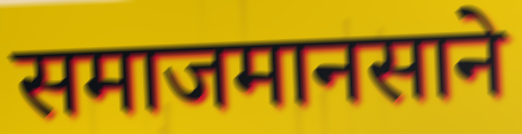
समाजमानसाने